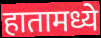
हातामध्ये